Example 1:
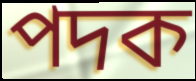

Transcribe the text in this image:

পদক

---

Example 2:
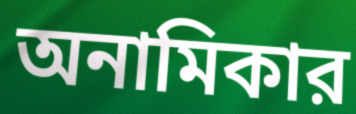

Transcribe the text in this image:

অনামিকার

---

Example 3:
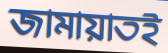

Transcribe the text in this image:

জামায়াতই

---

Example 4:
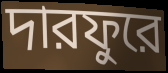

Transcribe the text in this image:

দারফুরে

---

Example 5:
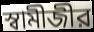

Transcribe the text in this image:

স্বামীজীর